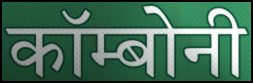
कॉम्बोनी